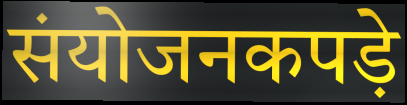
संयोजनकपड़े